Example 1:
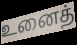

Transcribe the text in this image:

உனைத்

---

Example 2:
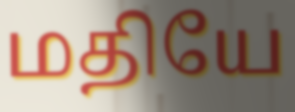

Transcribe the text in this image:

மதியே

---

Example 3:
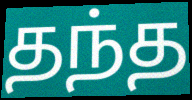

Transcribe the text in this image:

தந்த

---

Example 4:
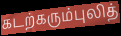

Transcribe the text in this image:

கடற்கரும்புலித்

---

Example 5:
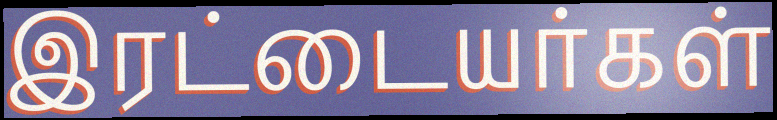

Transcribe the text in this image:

இரட்டையர்கள்